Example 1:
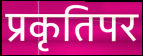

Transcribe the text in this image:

प्रकृतिपर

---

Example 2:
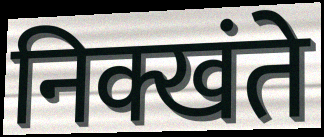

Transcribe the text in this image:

निक्खंते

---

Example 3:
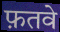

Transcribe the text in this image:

फ़तवे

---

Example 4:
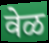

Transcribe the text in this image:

वेळ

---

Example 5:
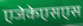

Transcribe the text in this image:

एजेकेएसएस